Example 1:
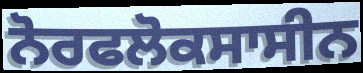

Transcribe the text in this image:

ਨੋਰਫਲੋਕਸਾਸੀਨ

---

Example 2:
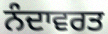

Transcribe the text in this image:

ਨੰਦਾਵਰਤ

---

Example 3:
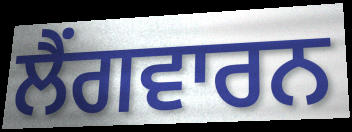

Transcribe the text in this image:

ਲੈਂਗਵਾਰਨ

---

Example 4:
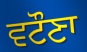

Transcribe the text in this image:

ਵਟੌਣਾ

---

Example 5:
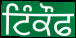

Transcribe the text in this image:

ਟਿੰਕੌਫ